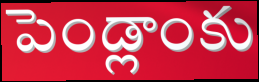
పెండ్లాంకు